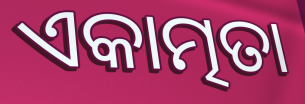
ଏକାତ୍ମତା